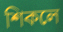
শিকলে